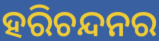
ହରିଚନ୍ଦନର